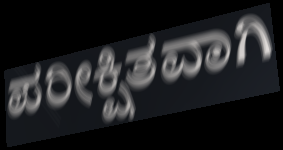
ಪರೀಕ್ಷಿತವಾಗಿ